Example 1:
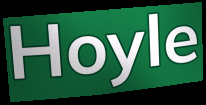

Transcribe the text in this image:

Hoyle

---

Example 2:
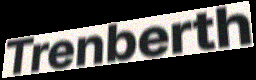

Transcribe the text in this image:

Trenberth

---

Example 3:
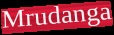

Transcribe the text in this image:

Mrudanga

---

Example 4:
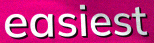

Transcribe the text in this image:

easiest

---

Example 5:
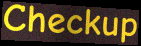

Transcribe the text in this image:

Checkup